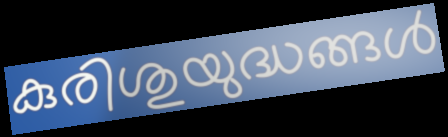
കുരിശുയുദ്ധങ്ങൾ